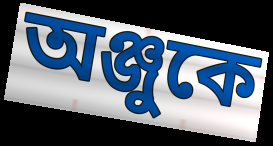
অঞ্জুকে